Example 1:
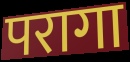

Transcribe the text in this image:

परागा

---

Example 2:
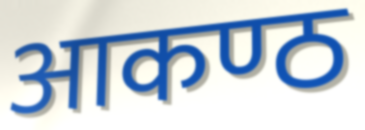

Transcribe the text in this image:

आकण्ठ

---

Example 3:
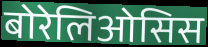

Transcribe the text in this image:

बोरेलिओसिस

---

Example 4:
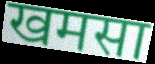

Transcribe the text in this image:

खमसा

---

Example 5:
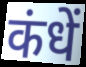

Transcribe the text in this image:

कंधें